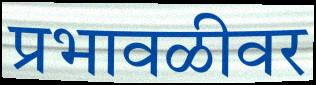
प्रभावळीवर